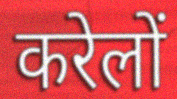
करेलों